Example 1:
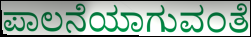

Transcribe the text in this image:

ಪಾಲನೆಯಾಗುವಂತೆ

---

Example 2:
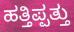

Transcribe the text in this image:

ಹತ್ತಿಪ್ಪತ್ತು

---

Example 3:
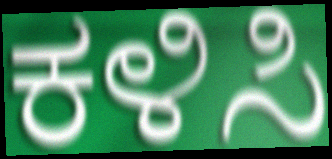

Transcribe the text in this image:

ಕಳಿಸಿ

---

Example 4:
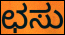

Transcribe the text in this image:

ಛಸು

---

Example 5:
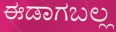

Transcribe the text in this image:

ಈಡಾಗಬಲ್ಲ